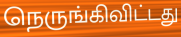
நெருங்கிவிட்டது